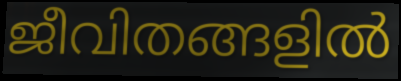
ജീവിതങ്ങളിൽ